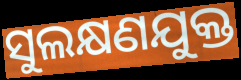
ସୁଲକ୍ଷଣଯୁକ୍ତ